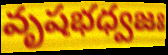
వృషభధ్వజః